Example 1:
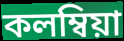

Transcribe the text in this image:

কলম্বিয়া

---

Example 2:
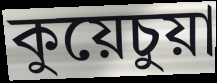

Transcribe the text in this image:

কুয়েচুয়া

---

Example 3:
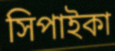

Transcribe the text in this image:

সিপাইকা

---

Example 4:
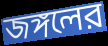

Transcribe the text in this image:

জঙ্গলের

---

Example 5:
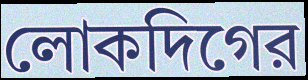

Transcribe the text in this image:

লোকদিগের